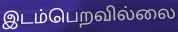
இடம்பெறவில்லை